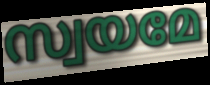
സ്വയമേ